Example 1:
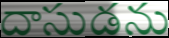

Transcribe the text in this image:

దాసుడను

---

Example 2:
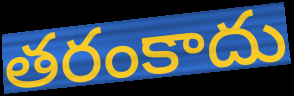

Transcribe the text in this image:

తరంకాదు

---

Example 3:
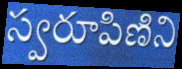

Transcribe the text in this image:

స్వరూపిణిని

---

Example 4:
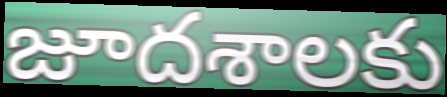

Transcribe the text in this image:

జూదశాలకు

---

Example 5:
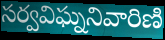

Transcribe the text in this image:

సర్వవిఘ్ననివారిణి